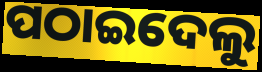
ପଠାଇଦେଲୁ